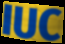
IUC